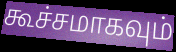
கூச்சமாகவும்